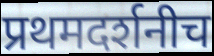
प्रथमदर्शनीच